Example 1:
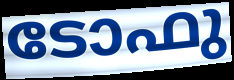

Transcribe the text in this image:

ടോഫു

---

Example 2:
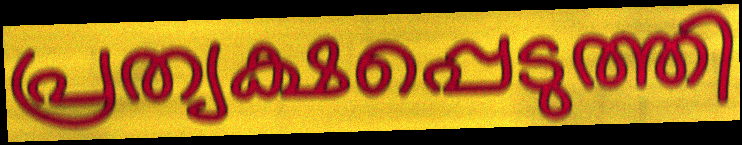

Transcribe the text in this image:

പ്രത്യക്ഷപ്പെടുത്തി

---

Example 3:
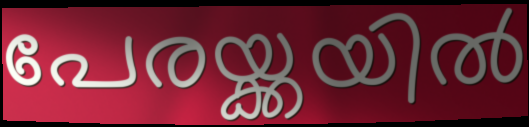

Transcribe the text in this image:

പേരയ്ക്കയിൽ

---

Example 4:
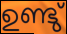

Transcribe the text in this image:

ഉണ്ടു്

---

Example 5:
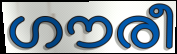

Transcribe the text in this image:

ഗൗരീ